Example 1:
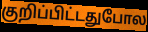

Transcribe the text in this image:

குறிப்பிட்டதுபோல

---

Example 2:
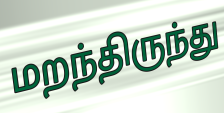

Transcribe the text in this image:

மறந்திருந்து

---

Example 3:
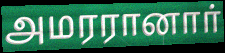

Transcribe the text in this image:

அமரரானார்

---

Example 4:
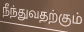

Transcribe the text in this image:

நீந்துவதற்கும்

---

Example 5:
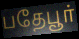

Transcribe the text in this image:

பதேபூர்